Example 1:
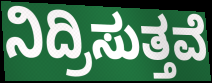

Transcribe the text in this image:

ನಿದ್ರಿಸುತ್ತವೆ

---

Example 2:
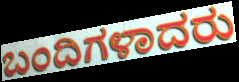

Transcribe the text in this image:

ಬಂದಿಗಳಾದರು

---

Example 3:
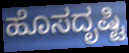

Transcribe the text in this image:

ಹೊಸದೃಷ್ಟಿ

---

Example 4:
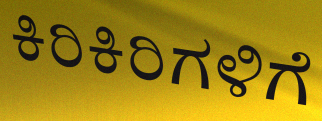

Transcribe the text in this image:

ಕಿರಿಕಿರಿಗಳಿಗೆ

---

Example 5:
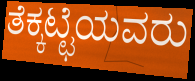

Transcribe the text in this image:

ತೆಕ್ಕಟ್ಟೆಯವರು